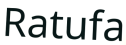
Ratufa